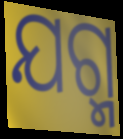
ଯଗ୍ମ